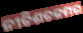
ନୀତିଶତକମର